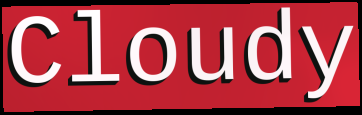
Cloudy